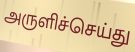
அருளிச்செய்து